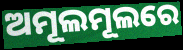
ଅମୂଲମୂଲରେ